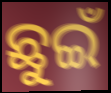
ଛୁଇଁ